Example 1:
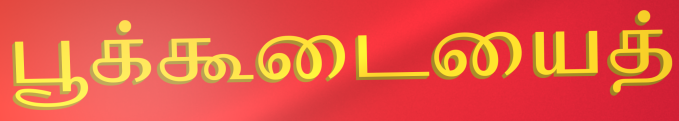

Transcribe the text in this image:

பூக்கூடையைத்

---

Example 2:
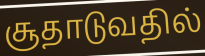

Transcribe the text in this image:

சூதாடுவதில்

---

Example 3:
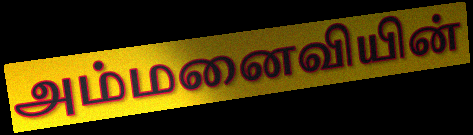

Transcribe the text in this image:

அம்மனைவியின்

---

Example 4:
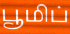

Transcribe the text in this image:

பூமிப்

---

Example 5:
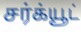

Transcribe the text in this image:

சர்க்யூட்